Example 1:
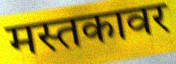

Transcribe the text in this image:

मस्तकावर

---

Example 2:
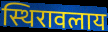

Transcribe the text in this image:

स्थिरावलाय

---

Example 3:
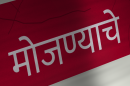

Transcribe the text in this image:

मोजण्याचे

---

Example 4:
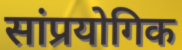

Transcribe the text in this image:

सांप्रयोगिक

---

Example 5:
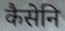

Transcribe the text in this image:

कैसेनि